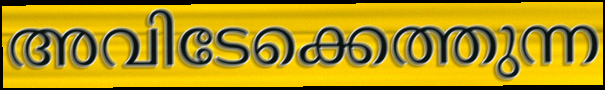
അവിടേക്കെത്തുന്ന